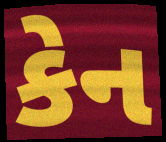
કેન